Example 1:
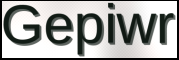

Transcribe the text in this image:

Gepiwr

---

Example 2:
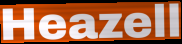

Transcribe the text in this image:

Heazell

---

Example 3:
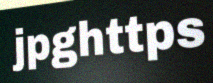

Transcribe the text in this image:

jpghttps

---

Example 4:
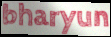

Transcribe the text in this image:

bharyun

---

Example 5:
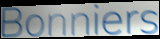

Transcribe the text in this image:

Bonniers